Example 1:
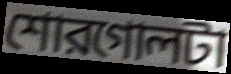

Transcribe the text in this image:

শোরগোলটা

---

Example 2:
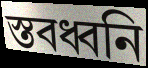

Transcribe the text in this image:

স্তবধ্বনি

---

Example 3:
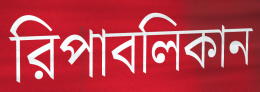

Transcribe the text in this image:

রিপাবলিকান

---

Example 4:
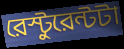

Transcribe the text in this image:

রেস্টুরেন্টটা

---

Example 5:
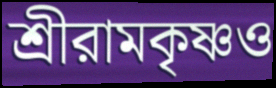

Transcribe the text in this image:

শ্রীরামকৃষ্ণও